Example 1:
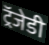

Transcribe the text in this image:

ट्रॅजेडी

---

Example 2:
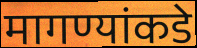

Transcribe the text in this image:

मागण्यांकडे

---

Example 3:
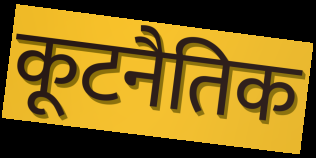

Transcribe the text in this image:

कूटनैतिक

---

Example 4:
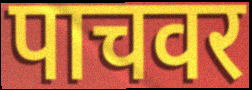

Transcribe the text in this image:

पाचवर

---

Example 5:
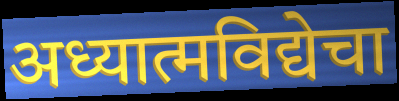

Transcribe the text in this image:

अध्यात्मविद्येचा